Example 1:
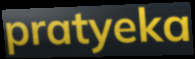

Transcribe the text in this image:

pratyeka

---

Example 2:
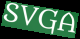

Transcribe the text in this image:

SVGA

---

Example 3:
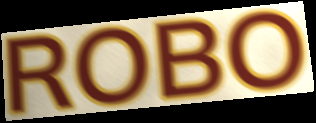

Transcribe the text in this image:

ROBO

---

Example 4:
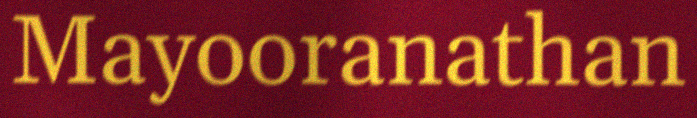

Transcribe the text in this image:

Mayooranathan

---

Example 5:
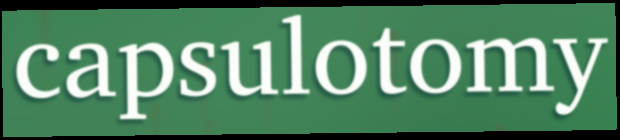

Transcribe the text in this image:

capsulotomy